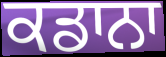
ਕਡਾਨਾ